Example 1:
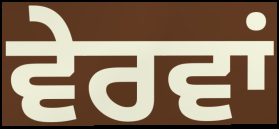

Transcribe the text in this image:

ਵੇਰਵਾਂ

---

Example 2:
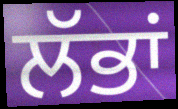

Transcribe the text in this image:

ਲੱਭਾਂ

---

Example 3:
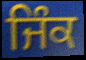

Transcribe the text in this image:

ਜਿੰਕ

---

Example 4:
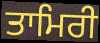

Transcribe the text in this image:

ਤਾਮਿਰੀ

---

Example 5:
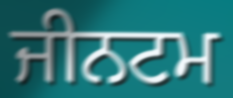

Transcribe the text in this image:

ਜੀਨਟਮ